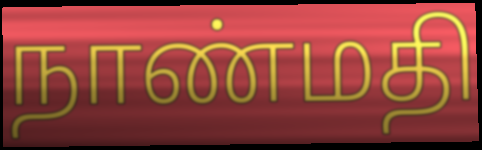
நாண்மதி